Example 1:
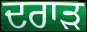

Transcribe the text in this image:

ਦਰਾੜ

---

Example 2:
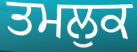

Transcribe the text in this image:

ਤਮਲੁਕ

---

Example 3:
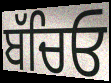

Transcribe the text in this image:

ਬੱਚਿਓ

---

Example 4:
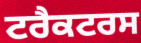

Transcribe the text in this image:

ਟਰੈਕਟਰਸ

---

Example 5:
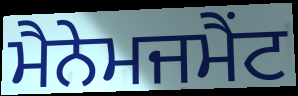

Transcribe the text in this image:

ਮੈਨੇਮਜਮੈਂਟ